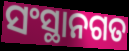
ସଂସ୍ଥାନଗତ